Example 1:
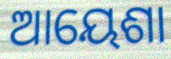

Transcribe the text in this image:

ଆୟେଶା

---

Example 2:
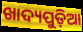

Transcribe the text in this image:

ଖାଦ୍ୟପୁଡ଼ିଆ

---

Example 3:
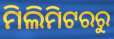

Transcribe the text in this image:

ମିଲିମିଟରରୁ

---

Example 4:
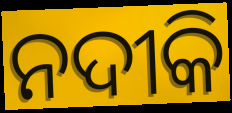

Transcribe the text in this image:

ନଦୀକି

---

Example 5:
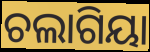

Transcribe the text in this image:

ଚଲାଗିୟା